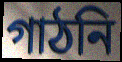
গাঠনি